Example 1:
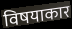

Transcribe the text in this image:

विषयाकार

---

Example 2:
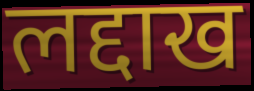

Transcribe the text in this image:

लद्दाख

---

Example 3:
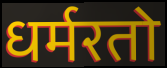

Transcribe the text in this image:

धर्मरतो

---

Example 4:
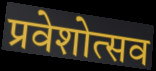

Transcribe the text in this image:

प्रवेशोत्सव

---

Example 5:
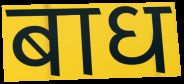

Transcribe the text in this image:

बाध